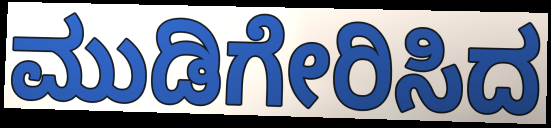
ಮುಡಿಗೇರಿಸಿದ